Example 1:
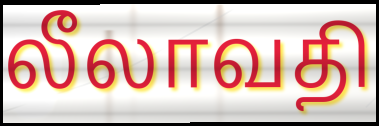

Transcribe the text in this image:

லீலாவதி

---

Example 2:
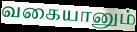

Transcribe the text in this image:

வகையானும்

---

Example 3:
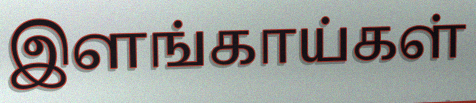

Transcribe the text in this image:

இளங்காய்கள்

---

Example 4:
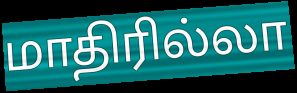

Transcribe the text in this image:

மாதிரில்லா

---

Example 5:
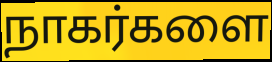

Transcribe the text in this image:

நாகர்களை